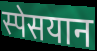
स्पेसयान